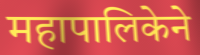
महापालिकेने